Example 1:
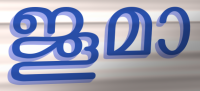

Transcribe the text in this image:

ജൂമാ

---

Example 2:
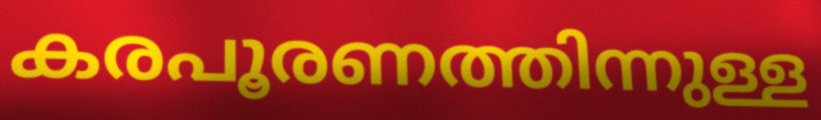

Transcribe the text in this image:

കരപൂരണത്തിന്നുള്ള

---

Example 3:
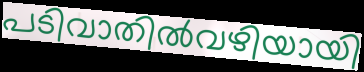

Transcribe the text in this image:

പടിവാതിൽവഴിയായി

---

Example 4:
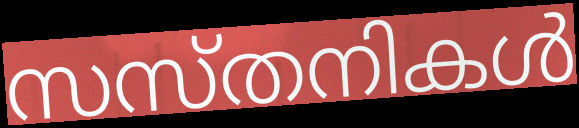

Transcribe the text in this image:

സസ്തനികൾ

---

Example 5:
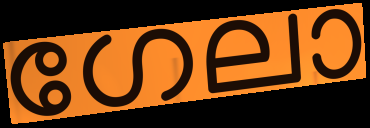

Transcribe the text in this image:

ഗേലാ